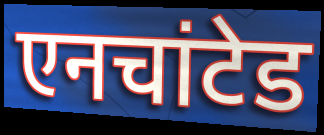
एनचांटेड